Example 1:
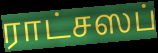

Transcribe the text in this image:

ராட்சஸப்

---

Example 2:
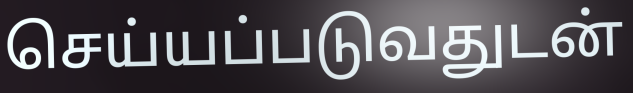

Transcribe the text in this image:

செய்யப்படுவதுடன்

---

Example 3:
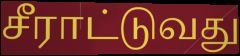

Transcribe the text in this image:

சீராட்டுவது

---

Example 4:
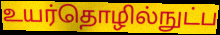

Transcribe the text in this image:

உயர்தொழில்நுட்ப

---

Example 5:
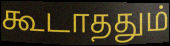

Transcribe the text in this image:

கூடாததும்